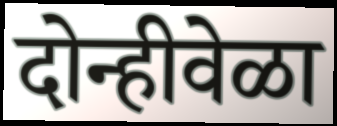
दोन्हीवेळा